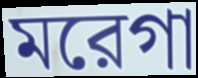
মরেগা